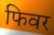
फिवर